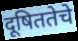
दूषिततेचे